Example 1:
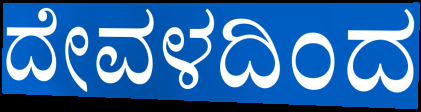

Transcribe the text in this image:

ದೇವಳದಿಂದ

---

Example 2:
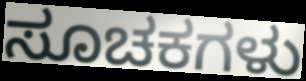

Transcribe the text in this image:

ಸೂಚಕಗಳು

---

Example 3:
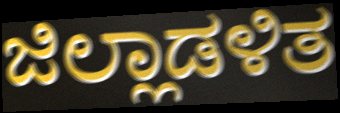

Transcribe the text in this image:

ಜಿಲ್ಲಾಡಳಿತ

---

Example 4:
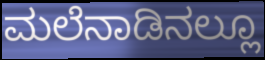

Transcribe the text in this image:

ಮಲೆನಾಡಿನಲ್ಲೂ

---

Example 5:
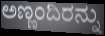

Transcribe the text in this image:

ಅಣ್ಣಂದಿರನ್ನು